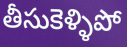
తీసుకెళ్ళిపో